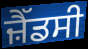
ਜ਼ੈੱਡਸੀ